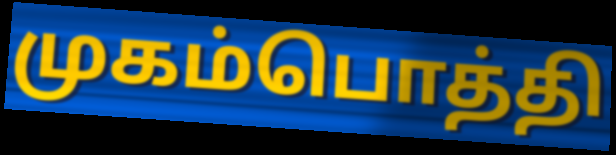
முகம்பொத்தி